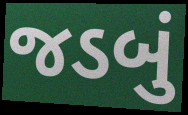
જડબું